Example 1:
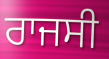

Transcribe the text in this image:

ਰਾਜਸੀ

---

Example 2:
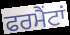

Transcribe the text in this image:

ਫਰਮੈਂਟਾਂ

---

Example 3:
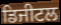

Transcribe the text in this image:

ਡਿਜੀਟਲ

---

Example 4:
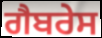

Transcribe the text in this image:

ਗੈਬਰੇਸ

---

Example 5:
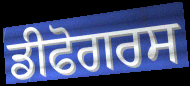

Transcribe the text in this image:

ਡੀਫੋਗਰਸ